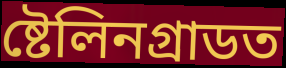
ষ্টেলিনগ্ৰাডত